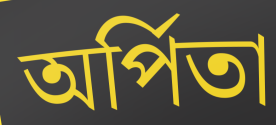
অর্পিতা